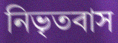
নিভৃতবাস